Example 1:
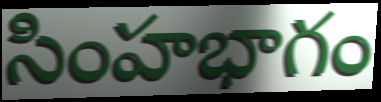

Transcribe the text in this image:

సింహభాగం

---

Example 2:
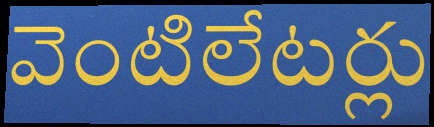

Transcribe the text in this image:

వెంటిలేటర్లు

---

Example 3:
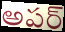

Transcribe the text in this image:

అపర్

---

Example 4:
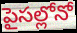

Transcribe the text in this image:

పైసల్లోనో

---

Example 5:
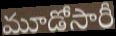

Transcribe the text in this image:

మూడోసారీ